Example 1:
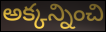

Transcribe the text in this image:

అక్కన్నించి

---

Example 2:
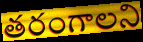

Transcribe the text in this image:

తరంగాలని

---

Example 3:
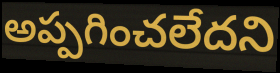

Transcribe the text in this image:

అప్పగించలేదని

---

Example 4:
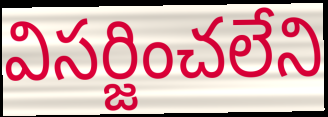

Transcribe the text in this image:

విసర్జించలేని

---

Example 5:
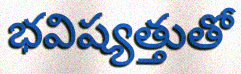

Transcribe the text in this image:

భవిష్యత్తుతో